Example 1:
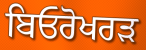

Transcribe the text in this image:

ਬਿਓਰੋਖਰੜ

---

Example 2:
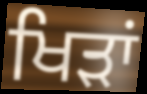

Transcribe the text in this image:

ਖਿੜਾਂ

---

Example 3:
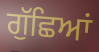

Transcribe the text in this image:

ਗੁੱਛਿਆਂ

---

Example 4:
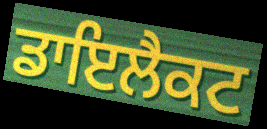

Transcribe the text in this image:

ਡਾਇਲੈਕਟ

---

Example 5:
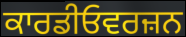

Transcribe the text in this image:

ਕਾਰਡੀਓਵਰਜ਼ਨ